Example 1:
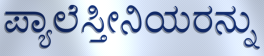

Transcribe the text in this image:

ಪ್ಯಾಲೆಸ್ತೀನಿಯರನ್ನು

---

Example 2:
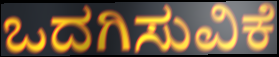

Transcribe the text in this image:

ಒದಗಿಸುವಿಕೆ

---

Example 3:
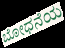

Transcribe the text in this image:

ಬೋಧನೆಯ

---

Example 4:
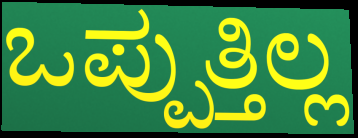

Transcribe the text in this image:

ಒಪ್ಪುತ್ತಿಲ್ಲ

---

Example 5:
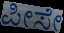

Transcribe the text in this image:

ಪೀಸೇ